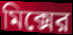
মিক্সের